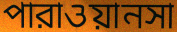
পারাওয়ানসা